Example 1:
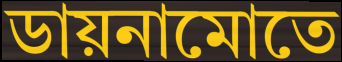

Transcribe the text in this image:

ডায়নামোতে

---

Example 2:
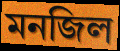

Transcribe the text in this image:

মনজিল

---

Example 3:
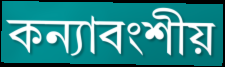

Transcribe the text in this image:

কন্যাবংশীয়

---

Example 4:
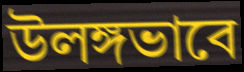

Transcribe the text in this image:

উলঙ্গভাবে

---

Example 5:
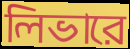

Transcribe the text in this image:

লিভারে